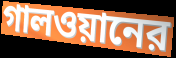
গালওয়ানের